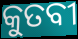
କୁତବୀ